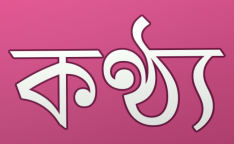
কণ্ঠ্য